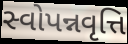
સ્વોપન્નવૃત્તિ